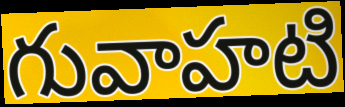
గువాహటి